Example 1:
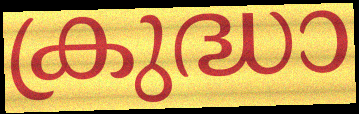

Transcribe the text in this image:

ക്രുദ്ധാ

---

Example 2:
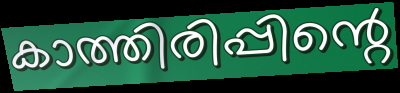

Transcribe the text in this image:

കാത്തിരിപ്പിന്റെ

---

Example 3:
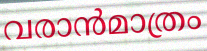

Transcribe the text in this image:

വരാൻമാത്രം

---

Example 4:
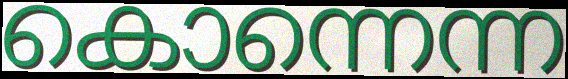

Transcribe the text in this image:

കൊന്നെന്ന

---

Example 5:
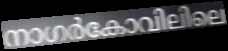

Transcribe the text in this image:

നാഗർകോവിലിലെ